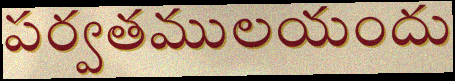
పర్వతములయందు